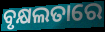
ବୃକ୍ଷଲତାରେ